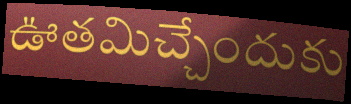
ఊతమిచ్చేందుకు